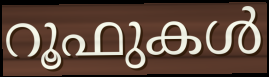
റൂഫുകൾ